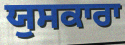
ਯੁਸਕਾਰਾ